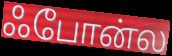
ஃபோன்ல